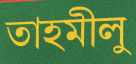
তাহমীলু